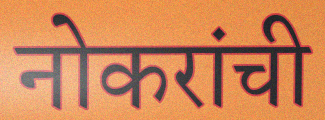
नोकरांची